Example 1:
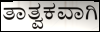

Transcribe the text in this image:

ತಾತ್ವಕವಾಗಿ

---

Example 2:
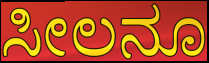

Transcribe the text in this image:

ಸೀಲನೂ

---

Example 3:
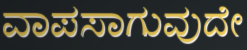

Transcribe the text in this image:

ವಾಪಸಾಗುವುದೇ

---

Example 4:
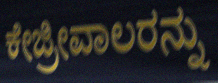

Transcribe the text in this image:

ಕೇಜ್ರೀವಾಲರನ್ನು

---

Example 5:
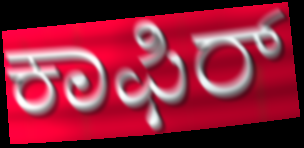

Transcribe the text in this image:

ಕಾಫಿರ್